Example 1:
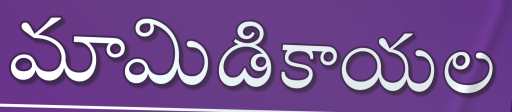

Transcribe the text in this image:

మామిడికాయల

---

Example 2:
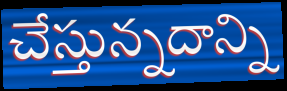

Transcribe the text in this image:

చేస్తున్నదాన్ని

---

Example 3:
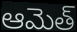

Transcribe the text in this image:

ఆమెత్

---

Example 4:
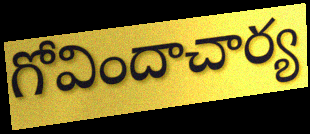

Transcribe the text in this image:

గోవిందాచార్య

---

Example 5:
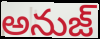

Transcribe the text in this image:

అనుజ్